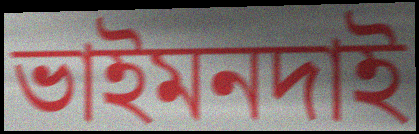
ভাইমনদাই